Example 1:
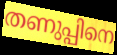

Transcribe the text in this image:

തണുപ്പിനെ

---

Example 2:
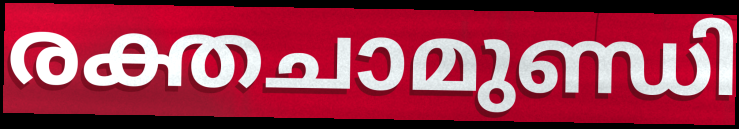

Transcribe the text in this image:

രക്തചാമുണ്ഡി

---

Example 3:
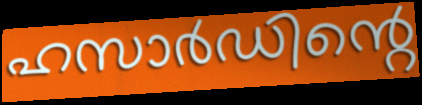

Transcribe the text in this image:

ഹസാർഡിന്റെ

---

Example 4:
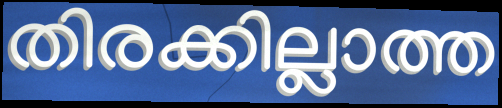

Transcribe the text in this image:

തിരക്കില്ലാത്ത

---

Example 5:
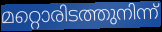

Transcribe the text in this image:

മറ്റൊരിടത്തുനിന്ന്